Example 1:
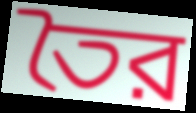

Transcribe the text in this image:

তৈর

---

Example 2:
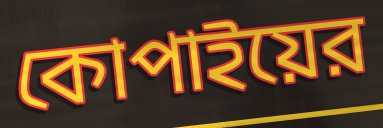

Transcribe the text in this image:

কোপাইয়ের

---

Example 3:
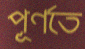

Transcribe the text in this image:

পূর্ণতে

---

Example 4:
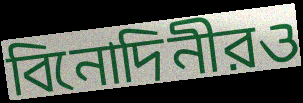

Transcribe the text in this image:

বিনোদিনীরও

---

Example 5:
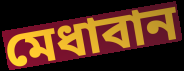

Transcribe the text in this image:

মেধাবান